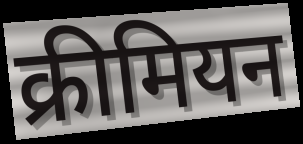
क्रीमियन